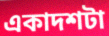
একাদশটা